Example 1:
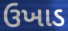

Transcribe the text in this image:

ઉખાડ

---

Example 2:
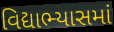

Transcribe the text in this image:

વિદ્યાભ્યાસમાં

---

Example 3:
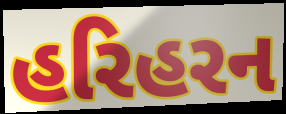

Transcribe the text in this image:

હરિહરન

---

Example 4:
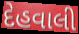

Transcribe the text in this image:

દેહવાલી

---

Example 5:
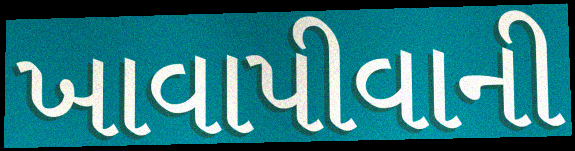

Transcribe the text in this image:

ખાવાપીવાની